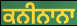
ਕਨੀਨਾਨਾ